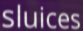
sluices